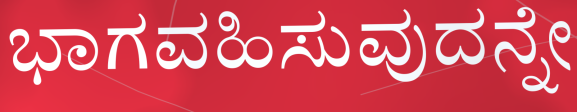
ಭಾಗವಹಿಸುವುದನ್ನೇ